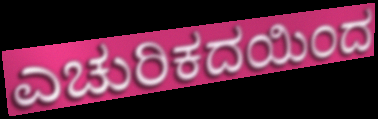
ಎಚುರಿಕದಯಿಂದ